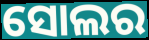
ସୋଲର